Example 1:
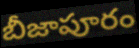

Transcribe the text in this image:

బీజాపూరం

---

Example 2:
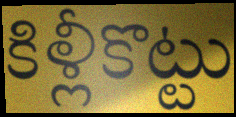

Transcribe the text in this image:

కిళ్లీకొట్టు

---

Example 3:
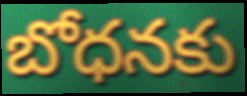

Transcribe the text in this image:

బోధనకు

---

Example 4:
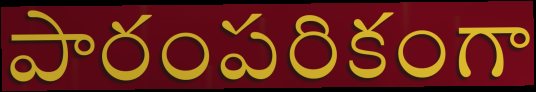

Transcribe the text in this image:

పారంపరికంగా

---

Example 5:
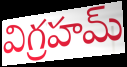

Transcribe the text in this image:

విగ్రహమ్